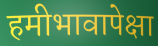
हमीभावापेक्षा